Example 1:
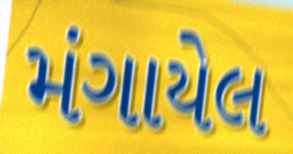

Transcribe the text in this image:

મંગાયેલ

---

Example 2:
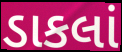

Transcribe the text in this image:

ડાકલાં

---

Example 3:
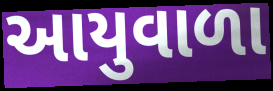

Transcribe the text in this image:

આયુવાળા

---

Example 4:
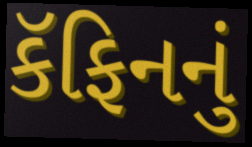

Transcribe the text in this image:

કૅફિનનું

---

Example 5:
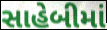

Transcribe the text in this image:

સાહેબીમાં